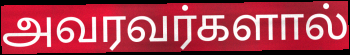
அவரவர்களால்